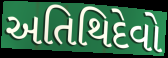
અતિથિદેવો